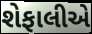
શેફાલીએ